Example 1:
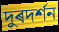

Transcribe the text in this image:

দুৰদৰ্শন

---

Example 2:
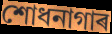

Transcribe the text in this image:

শোধনাগাৰ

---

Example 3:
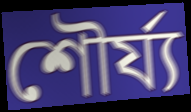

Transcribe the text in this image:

শৌৰ্য্য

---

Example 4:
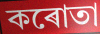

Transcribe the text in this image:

কৰোতা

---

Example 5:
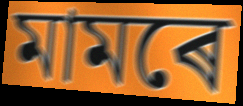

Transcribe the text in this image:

মামৰে